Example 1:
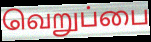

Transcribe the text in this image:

வெறுப்பை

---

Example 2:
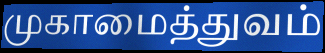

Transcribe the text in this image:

முகாமைத்துவம்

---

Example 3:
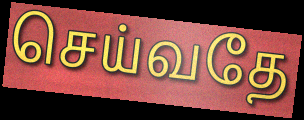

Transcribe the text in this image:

செய்வதே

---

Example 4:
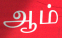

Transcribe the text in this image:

ஆம்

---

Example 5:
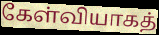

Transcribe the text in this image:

கேள்வியாகத்